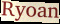
Ryoan